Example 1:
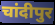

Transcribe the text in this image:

चांदीपुर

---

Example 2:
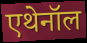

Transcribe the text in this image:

एथेनॉल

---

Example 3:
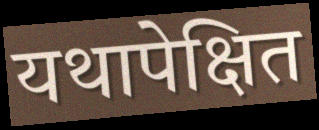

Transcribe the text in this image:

यथापेक्षित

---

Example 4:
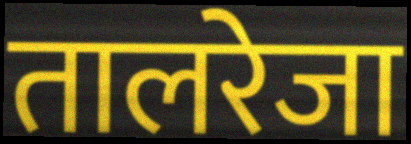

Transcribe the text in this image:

तालरेजा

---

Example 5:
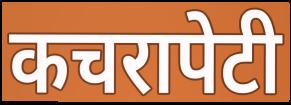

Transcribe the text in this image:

कचरापेटी